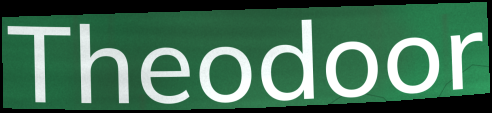
Theodoor